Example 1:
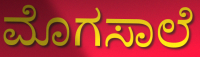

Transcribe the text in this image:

ಮೊಗಸಾಲೆ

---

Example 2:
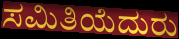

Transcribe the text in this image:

ಸಮಿತಿಯೆದುರು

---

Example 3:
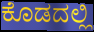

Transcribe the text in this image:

ಕೊಡದಲ್ಲಿ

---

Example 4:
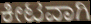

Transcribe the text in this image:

ಕೀಟವಾಗಿ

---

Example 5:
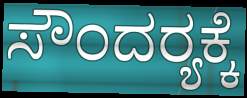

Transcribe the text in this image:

ಸೌಂದರ‍್ಯಕ್ಕೆ